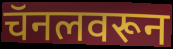
चॅनलवरून